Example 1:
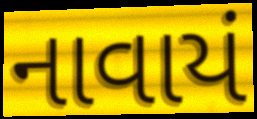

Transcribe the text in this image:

નાવાયં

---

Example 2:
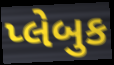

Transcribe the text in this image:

પ્લેબુક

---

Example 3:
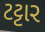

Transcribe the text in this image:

ટટ્ટાર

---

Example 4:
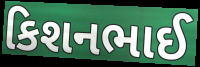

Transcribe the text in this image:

કિશનભાઈ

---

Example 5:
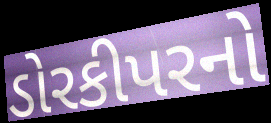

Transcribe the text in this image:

ડોરકીપરનો